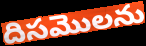
దిసమొలను